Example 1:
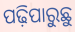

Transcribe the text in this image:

ପଢ଼ିପାରୁଛୁ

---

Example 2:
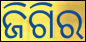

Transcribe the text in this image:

ଜିଗିର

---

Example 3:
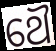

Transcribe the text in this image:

ଥୈ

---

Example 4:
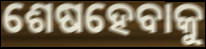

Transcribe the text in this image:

ଶେଷହେବାକୁ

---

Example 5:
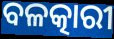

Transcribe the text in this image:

ବଳତ୍କାରୀ